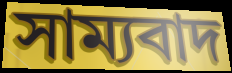
সাম্যবাদ